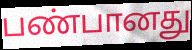
பண்பானது